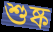
শুষ্ক